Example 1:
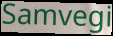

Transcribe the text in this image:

Samvegi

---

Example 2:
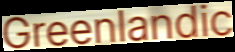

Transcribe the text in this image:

Greenlandic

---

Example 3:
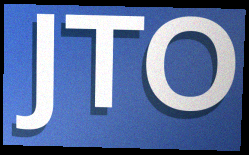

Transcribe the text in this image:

JTO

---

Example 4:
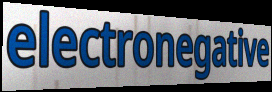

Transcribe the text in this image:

electronegative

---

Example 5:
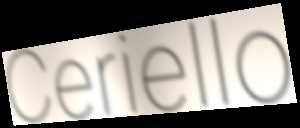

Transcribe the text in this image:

Ceriello